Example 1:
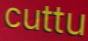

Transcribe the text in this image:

cuttu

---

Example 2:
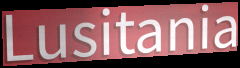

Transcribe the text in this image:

Lusitania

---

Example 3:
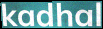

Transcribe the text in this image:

kadhal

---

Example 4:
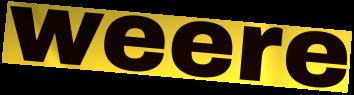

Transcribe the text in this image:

weere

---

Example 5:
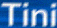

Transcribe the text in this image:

Tini